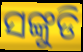
ସଙ୍କୁଡି